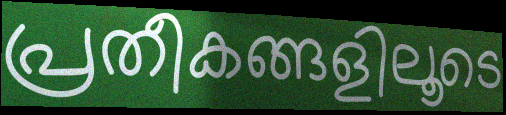
പ്രതീകങ്ങളിലൂടെ